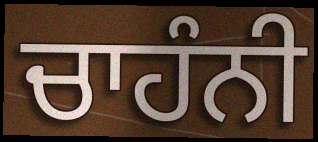
ਚਾਹੰਨੀ